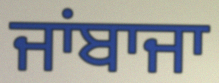
ਜਾਂਬਾਜਾ